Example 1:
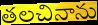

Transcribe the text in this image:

తలచినాను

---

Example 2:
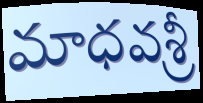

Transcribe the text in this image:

మాధవశ్రీ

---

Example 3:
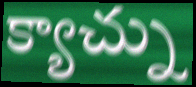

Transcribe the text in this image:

క్యాచ్ను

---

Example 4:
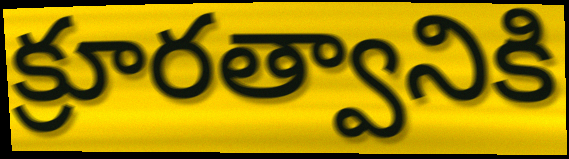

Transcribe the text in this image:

క్రూరత్వానికి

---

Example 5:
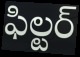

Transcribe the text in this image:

ఫిల్టర్